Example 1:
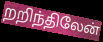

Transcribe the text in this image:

றறிந்திலேன்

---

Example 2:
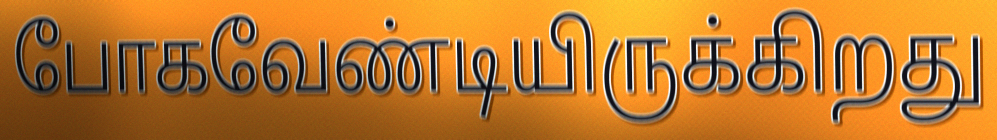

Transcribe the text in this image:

போகவேண்டியிருக்கிறது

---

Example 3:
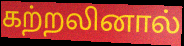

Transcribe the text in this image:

கற்றலினால்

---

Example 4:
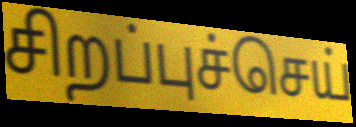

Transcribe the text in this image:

சிறப்புச்செய்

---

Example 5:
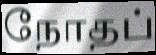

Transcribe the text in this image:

நோதப்